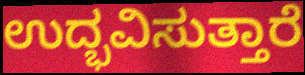
ಉದ್ಭವಿಸುತ್ತಾರೆ